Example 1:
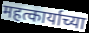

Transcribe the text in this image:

महत्कार्याच्या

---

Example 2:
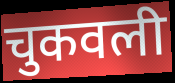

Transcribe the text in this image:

चुकवली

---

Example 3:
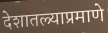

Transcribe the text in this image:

देशातल्याप्रमाणे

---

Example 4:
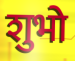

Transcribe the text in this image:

शुभो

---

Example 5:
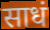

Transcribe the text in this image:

साधं